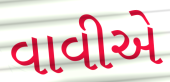
વાવીએ